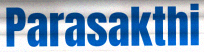
Parasakthi